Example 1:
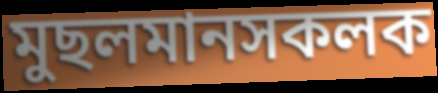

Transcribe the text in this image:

মুছলমানসকলক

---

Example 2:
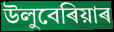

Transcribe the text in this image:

উলুবেৰিয়াৰ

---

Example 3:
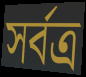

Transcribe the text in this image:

সৰ্বত্ৰ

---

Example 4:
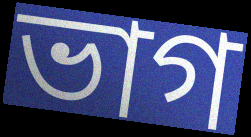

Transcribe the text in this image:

ভাগ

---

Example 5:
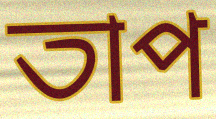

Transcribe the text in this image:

তাপ